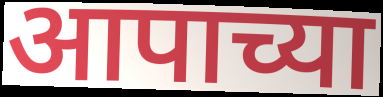
आपाच्या